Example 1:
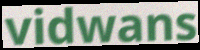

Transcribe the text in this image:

vidwans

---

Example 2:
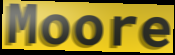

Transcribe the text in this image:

Moore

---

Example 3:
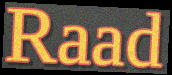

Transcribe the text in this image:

Raad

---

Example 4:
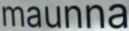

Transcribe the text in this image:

maunna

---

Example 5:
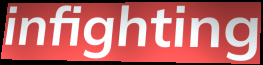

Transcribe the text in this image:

infighting